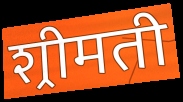
श्रीमती